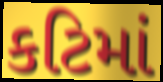
કટિમાં